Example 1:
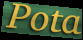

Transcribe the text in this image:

Pota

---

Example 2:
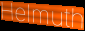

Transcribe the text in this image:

Helmuth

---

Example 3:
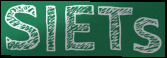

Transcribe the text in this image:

SIETs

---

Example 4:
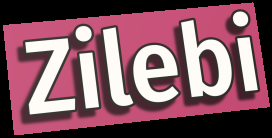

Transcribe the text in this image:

Zilebi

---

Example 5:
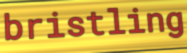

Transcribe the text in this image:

bristling